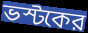
ভস্টকের